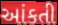
આંકતી